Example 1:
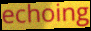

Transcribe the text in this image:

echoing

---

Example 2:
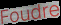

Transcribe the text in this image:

Foudre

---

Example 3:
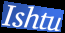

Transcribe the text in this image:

Ishtu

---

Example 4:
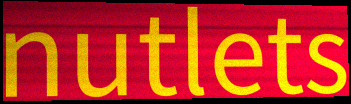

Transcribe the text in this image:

nutlets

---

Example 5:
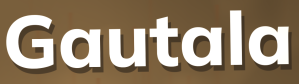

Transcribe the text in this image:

Gautala